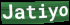
Jatiyo